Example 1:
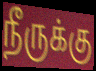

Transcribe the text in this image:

நீருக்கு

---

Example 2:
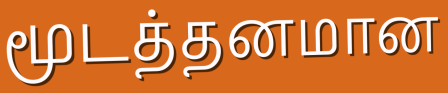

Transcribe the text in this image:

மூடத்தனமான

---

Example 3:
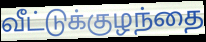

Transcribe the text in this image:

வீட்டுக்குழந்தை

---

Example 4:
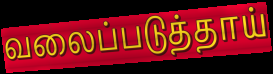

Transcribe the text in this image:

வலைப்படுத்தாய்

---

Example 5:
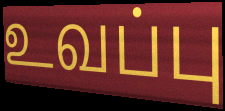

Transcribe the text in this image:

உவப்பு